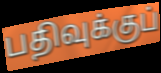
பதிவுக்குப்